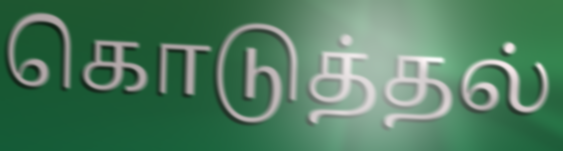
கொடுத்தல்